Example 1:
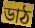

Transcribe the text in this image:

ডাঠ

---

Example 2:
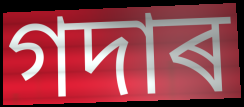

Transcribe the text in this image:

গদাৰ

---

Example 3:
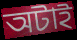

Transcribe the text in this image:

অটাই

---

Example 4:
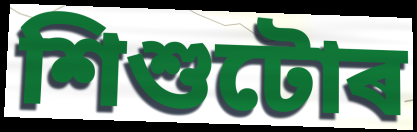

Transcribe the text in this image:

শিশুটোৰ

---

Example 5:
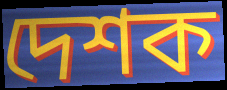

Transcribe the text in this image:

দেশক